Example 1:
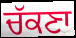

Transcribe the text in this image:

ਚੱਕਣਾ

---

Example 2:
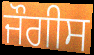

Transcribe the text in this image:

ਜੌਗੀਸ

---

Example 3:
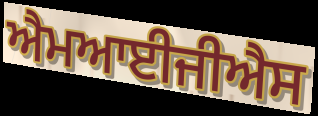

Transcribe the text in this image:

ਐਮਆਈਜੀਐਸ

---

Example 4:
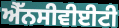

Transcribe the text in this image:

ਐੱਨਸੀਵੀਈਟੀ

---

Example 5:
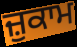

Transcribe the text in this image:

ਜ਼ੁਕਾਮ